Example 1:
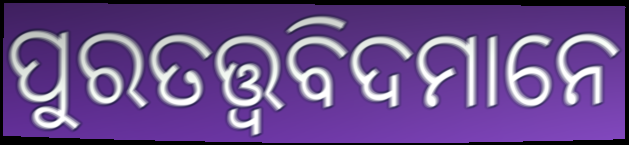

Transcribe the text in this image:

ପୁରତତ୍ତ୍ୱବିଦମାନେ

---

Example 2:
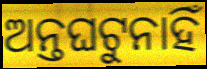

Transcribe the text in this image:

ଅନ୍ତଘଟୁନାହିଁ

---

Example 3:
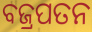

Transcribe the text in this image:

ବଜ୍ରପତନ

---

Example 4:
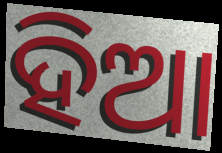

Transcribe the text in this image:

ହିଆ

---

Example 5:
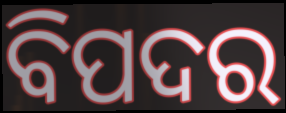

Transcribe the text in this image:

ବିପଦର